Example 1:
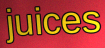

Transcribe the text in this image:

juices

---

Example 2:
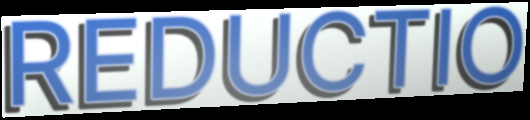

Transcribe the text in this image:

REDUCTIO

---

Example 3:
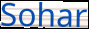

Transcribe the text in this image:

Sohar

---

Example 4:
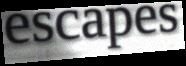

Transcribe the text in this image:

escapes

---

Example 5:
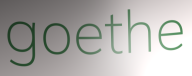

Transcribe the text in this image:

goethe